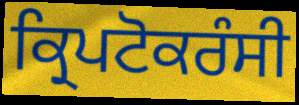
ਕ੍ਰਿਪਟੋਕਰੰਸੀ